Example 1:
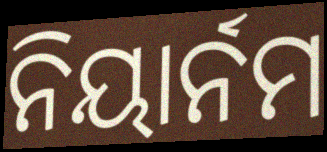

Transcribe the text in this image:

ନିୟାର୍ନମ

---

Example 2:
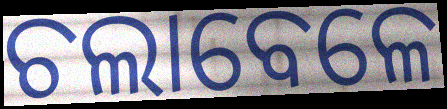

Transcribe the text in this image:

ଚଲାବେଳେ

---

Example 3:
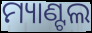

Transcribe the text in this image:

ମ୍ୟାଣ୍ଟଲ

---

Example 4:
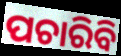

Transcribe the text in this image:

ପଚାରିବି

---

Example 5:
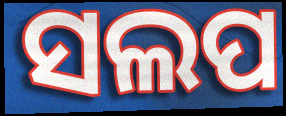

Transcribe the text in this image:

ସଲପ